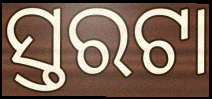
ସ୍ତରଟା